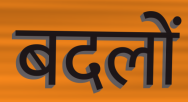
बदलों